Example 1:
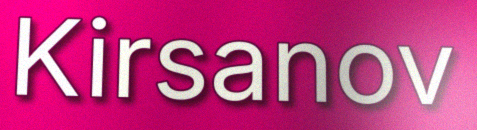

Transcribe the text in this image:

Kirsanov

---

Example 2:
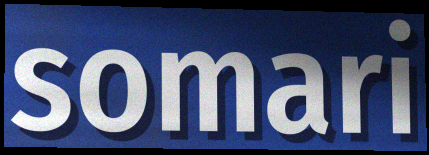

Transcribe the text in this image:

somari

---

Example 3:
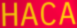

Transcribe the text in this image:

HACA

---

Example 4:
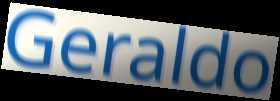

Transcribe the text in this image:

Geraldo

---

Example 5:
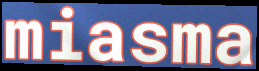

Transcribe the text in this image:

miasma